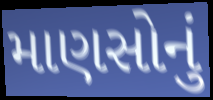
માણસોનું